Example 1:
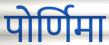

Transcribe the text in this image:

पोर्णिमा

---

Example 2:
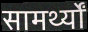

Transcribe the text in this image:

सामर्थ्यों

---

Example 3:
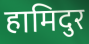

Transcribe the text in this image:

हामिदुर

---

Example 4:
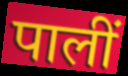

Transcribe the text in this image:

पालीं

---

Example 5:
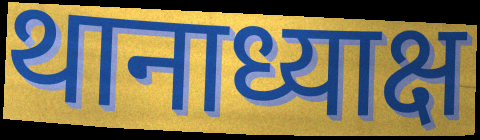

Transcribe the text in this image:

थानाध्याक्ष